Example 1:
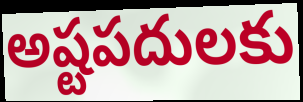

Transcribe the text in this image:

అష్టపదులకు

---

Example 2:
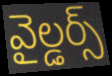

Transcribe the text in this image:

వైల్డర్స్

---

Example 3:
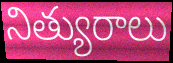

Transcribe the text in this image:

నిత్యురాలు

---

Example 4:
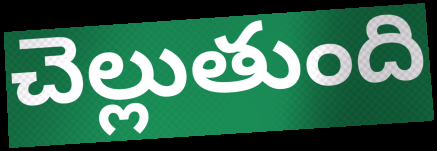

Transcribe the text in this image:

చెల్లుతుంది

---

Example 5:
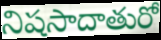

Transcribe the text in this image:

నిషసాదాతురో